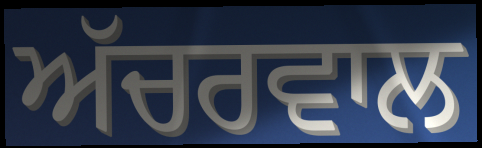
ਅੱਚਰਵਾਲ